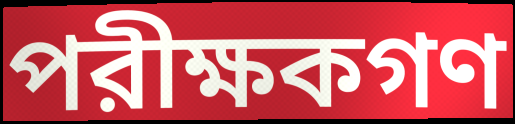
পরীক্ষকগণ